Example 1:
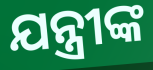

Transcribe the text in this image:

ଯନ୍ତ୍ରୀଙ୍କ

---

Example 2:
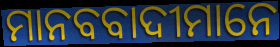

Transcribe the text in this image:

ମାନବବାଦୀମାନେ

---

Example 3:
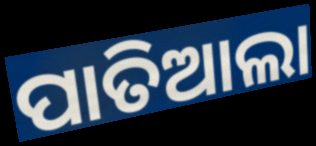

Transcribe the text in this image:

ପାତିଆଲା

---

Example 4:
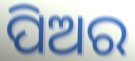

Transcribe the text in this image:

ପିଅର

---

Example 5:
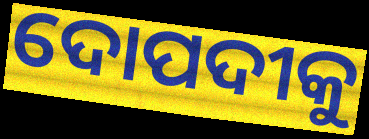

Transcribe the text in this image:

ଦୋପଦୀକୁ